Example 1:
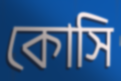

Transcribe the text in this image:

কোসি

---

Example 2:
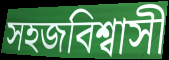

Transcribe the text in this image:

সহজবিশ্বাসী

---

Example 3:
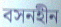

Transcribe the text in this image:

বসনহীন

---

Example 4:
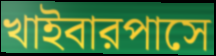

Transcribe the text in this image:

খাইবারপাসে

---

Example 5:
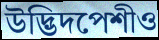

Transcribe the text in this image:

উদ্ভিদপেশীও